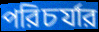
পরিচর্যার